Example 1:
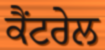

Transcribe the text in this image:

ਕੈਂਟਰੇਲ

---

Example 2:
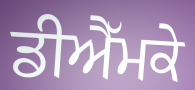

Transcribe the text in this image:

ਡੀਐੱਮਕੇ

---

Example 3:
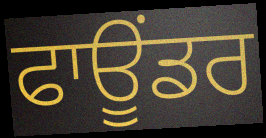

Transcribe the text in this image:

ਫਾਊਂਡਰ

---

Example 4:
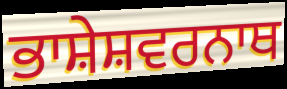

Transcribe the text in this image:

ਭਾਸ਼ੇਸ਼ਵਰਨਾਥ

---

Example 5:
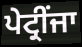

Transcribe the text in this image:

ਪੇਟ੍ਰੀਂਜਾ